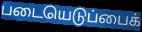
படையெடுப்பைக்